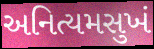
અનિત્યમસુખં